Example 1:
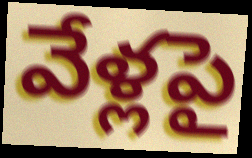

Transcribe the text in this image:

వేళ్లపై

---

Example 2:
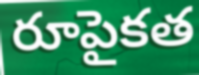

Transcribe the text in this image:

రూపైకత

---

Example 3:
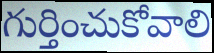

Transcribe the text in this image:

గుర్తించుకోవాలి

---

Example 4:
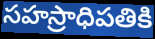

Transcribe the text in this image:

సహస్రాధిపతికి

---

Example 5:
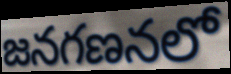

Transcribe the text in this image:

జనగణనలో